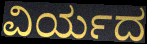
ವಿರ್ಯದ